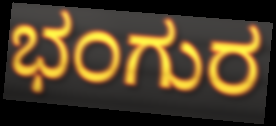
ಭಂಗುರ